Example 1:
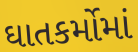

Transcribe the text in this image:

ઘાતકર્મોમાં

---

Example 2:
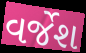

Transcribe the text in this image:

વર્જેશ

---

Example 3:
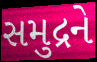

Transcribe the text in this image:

સમુદ્રને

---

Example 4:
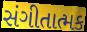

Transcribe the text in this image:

સંગીતાત્મક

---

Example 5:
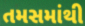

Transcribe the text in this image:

તમસમાંથી